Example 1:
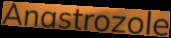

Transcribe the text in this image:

Anastrozole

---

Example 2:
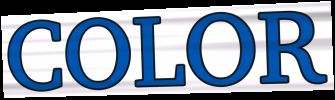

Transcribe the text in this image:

COLOR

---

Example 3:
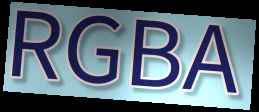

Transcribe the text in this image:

RGBA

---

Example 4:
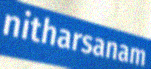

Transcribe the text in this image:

nitharsanam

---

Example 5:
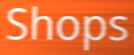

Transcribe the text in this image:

Shops